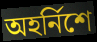
অহৰ্নিশে